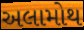
અલામોથ